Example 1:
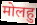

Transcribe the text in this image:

मोलहु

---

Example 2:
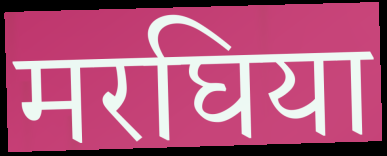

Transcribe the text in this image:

मरघिया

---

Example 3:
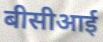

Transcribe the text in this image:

बीसीआई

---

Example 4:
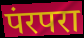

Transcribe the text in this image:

पंरपरा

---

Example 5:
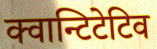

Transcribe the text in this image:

क्वान्टिटेटिव